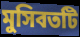
মুসিবতটি